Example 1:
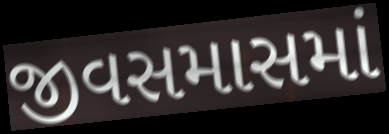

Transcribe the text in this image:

જીવસમાસમાં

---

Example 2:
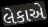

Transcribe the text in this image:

લેકાએ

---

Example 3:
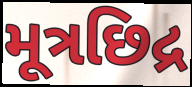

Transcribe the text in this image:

મૂત્રછિદ્ર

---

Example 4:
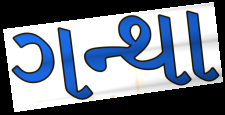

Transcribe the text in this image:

ગન્થા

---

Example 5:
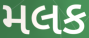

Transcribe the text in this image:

મલક